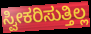
ಸ್ವೀಕರಿಸುತ್ತಿಲ್ಲ